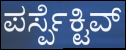
ಪರ್ಸ್ಪೆಕ್ಟಿವ್